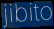
jibito